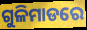
ଗୁଳିମାଡରେ